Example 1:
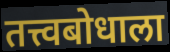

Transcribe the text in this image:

तत्त्वबोधाला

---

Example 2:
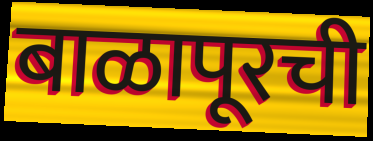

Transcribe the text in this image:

बाळापूरची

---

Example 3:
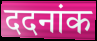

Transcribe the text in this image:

ददनांक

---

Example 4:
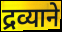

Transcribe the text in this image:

द्रव्याने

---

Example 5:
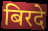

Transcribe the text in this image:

बिरदे